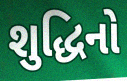
શુદ્ધિનો